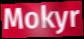
Mokyr